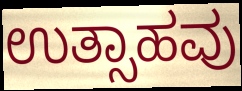
ಉತ್ಸಾಹವು